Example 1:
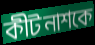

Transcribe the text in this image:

কীটনাশকে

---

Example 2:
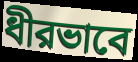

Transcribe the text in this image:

ধীরভাবে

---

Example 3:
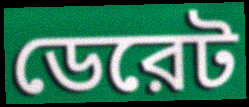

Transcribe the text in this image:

ডেরেট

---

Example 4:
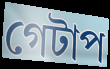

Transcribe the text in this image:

গেটাপ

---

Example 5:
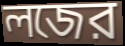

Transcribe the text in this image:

লজের